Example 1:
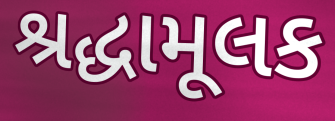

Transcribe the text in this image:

શ્રદ્ધામૂલક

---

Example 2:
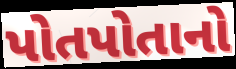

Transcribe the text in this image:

પોતપોતાનો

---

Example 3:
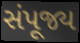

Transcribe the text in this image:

સંપૂજ્ય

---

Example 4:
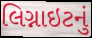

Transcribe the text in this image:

લિગ્નાઇટનું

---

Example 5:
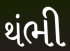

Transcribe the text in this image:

થંભી